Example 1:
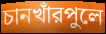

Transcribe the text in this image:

চানখাঁরপুলে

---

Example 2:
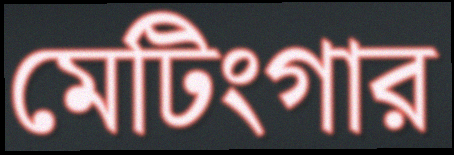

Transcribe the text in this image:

মেটিংগার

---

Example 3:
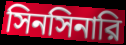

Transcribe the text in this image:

সিনসিনারি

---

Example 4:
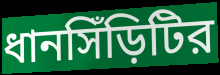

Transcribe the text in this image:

ধানসিঁড়িটির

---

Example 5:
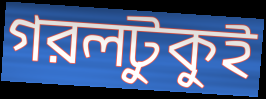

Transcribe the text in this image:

গরলটুকুই